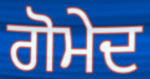
ਗੋਮੇਦ